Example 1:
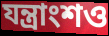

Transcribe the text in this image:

যন্ত্রাংশও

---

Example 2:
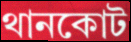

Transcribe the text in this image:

থানকোট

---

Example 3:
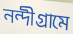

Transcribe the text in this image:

নন্দীগ্রামে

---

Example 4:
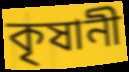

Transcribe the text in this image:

কৃষানী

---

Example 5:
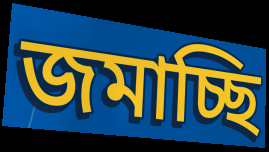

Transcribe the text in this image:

জমাচ্ছি